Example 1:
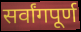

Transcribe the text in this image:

सर्वांगपूर्ण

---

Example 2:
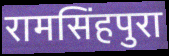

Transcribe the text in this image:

रामसिंहपुरा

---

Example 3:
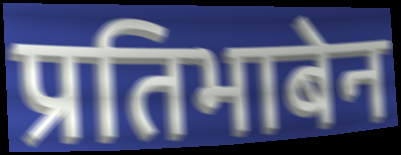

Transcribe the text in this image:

प्रतिभाबेन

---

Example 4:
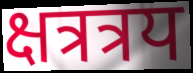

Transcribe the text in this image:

क्षत्रत्रय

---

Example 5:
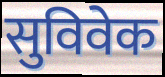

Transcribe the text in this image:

सुविवेक